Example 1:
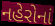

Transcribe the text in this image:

નહેરોનાં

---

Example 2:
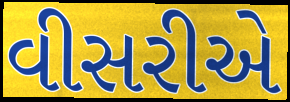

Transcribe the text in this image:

વીસરીએ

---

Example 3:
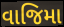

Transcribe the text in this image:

વાજિમા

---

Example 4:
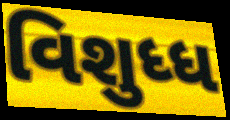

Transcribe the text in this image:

વિશુધ્ધ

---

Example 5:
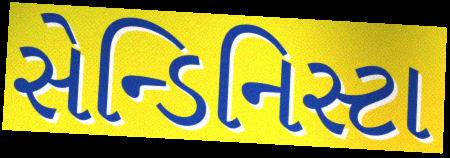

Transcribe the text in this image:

સેન્ડિનિસ્ટા